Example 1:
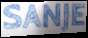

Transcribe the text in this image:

SANJE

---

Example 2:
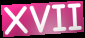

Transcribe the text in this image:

XVII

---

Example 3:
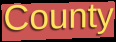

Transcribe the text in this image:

County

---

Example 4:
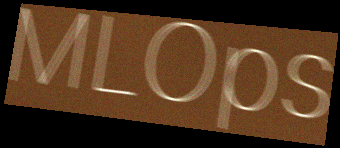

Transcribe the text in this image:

MLOps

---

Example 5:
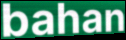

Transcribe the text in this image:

bahan